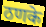
ठणके